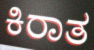
ಕಿರಾತ